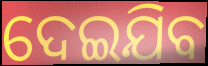
ଦେଇଯିବ